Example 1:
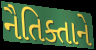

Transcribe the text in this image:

નૈતિક્તાને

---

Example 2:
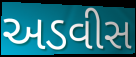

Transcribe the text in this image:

અડવીસ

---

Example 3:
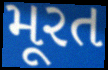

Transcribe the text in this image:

મૂરત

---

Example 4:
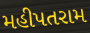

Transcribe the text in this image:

મહીપતરામ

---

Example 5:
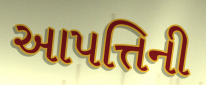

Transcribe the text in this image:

આપત્તિની